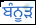
ਬੰਨੂੜ